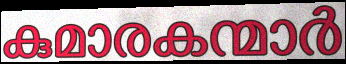
കുമാരകന്മാർ